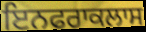
ਇਨਫਰਾਕਲਾਸ